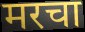
मरचा